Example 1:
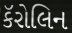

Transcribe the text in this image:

કૅરોલિન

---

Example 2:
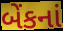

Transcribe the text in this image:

બેંકનાં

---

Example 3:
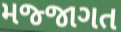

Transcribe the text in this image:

મજ્જાગત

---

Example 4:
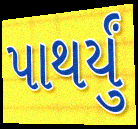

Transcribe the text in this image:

પાથર્યું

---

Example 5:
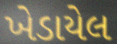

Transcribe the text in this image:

ખેડાયેલ